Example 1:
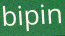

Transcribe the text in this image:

bipin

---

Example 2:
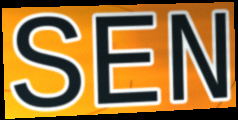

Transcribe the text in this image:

SEN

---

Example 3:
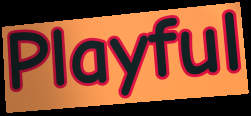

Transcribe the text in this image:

Playful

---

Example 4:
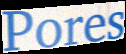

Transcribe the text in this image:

Pores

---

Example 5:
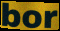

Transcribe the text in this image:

bor